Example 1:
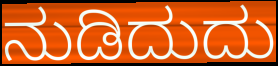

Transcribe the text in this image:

ನುಡಿದುದು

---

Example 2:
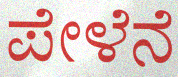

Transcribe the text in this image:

ಪೇಳೆನೆ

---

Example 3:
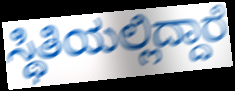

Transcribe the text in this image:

ಸ್ಥಿತಿಯಲ್ಲಿದ್ದಾರೆ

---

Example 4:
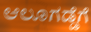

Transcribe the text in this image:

ಆಲೂಗಡ್ಡೆಗೆ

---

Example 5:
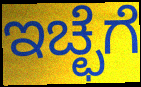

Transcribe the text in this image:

ಇಚ್ಛೆಗೆ